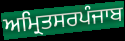
ਅਮ੍ਰਿਤਸਰਪੰਜਾਬ